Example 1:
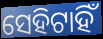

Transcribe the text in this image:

ସେହିଟାହିଁ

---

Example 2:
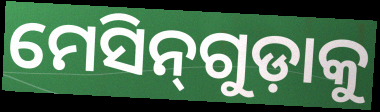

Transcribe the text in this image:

ମେସିନ୍‌ଗୁଡ଼ାକୁ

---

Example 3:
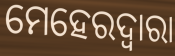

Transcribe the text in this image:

ମେହେରଦ୍ୱାରା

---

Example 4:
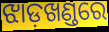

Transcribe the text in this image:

ଝାଡ଼ଖଣ୍ଡରେ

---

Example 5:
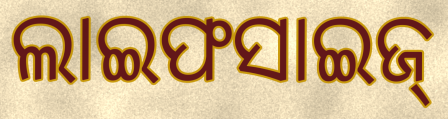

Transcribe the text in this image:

ଲାଇଫସାଇଜ୍